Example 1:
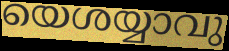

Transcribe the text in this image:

യെശയ്യാവു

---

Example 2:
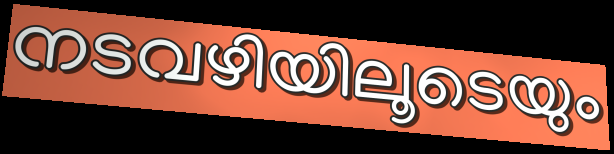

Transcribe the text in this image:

നടവഴിയിലൂടെയും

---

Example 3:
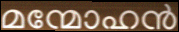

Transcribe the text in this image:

മന്മോഹൻ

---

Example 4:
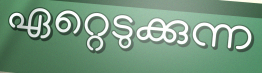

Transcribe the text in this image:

ഏറ്റെടുക്കുന്ന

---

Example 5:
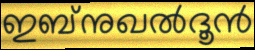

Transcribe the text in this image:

ഇബ്നുഖൽദൂൻ